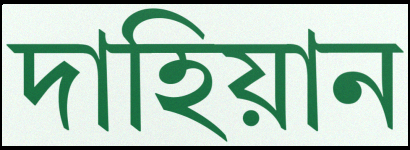
দাহিয়ান